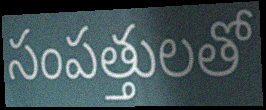
సంపత్తులతో